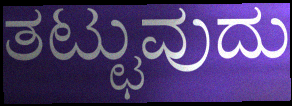
ತಟ್ಟುವುದು